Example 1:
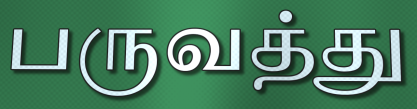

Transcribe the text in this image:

பருவத்து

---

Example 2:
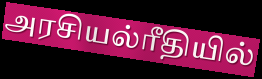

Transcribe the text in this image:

அரசியல்ரீதியில்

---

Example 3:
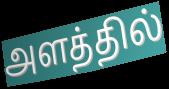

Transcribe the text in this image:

அளத்தில்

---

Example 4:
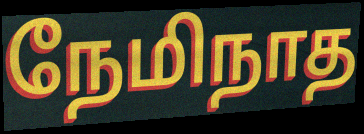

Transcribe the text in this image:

நேமிநாத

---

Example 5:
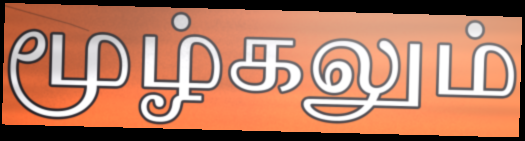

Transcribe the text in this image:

மூழ்கலும்